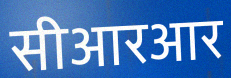
सीआरआर